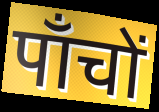
पाँचों